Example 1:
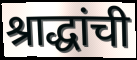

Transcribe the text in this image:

श्राद्धांची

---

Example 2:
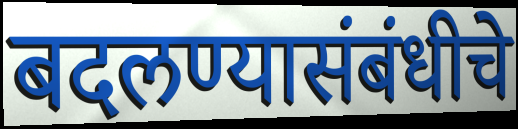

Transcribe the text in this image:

बदलण्यासंबंधीचे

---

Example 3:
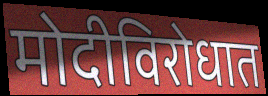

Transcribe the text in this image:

मोदीविरोधात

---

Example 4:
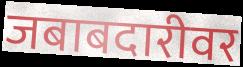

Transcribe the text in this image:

जबाबदारीवर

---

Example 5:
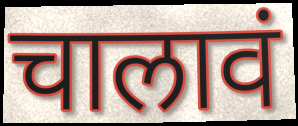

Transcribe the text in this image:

चालावं